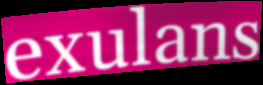
exulans